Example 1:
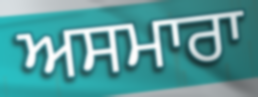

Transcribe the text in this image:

ਅਸਮਾਰਾ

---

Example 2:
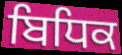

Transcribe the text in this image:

ਬਿਧਿਕ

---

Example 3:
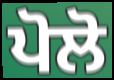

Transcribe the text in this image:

ਪੋਲੋ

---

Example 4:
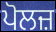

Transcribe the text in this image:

ਪੋਲਜ਼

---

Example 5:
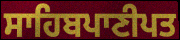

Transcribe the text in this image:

ਸਾਹਿਬਪਾਣੀਪਤ